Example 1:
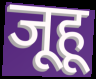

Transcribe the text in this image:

जूहू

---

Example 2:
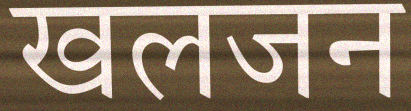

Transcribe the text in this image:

खलजन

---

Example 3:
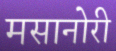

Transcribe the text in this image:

मसानोरी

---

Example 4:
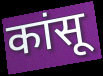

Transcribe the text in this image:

कांसू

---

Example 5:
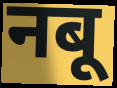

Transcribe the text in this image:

नबू